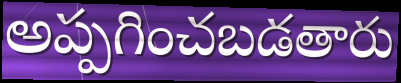
అప్పగించబడతారు